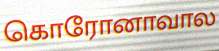
கொரோனாவால